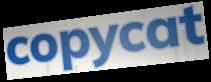
copycat